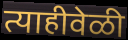
त्याहीवेळी